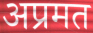
अप्रमत